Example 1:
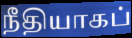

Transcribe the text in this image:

நீதியாகப்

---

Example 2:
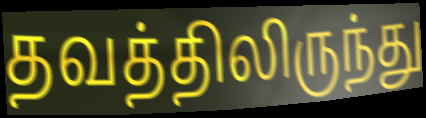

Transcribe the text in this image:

தவத்திலிருந்து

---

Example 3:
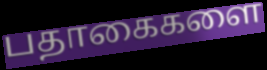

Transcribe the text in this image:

பதாகைகளை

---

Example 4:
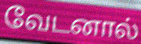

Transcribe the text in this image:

வேடனால்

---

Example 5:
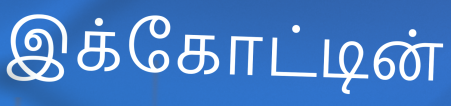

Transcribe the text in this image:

இக்கோட்டின்